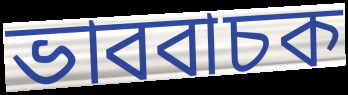
ভাববাচক